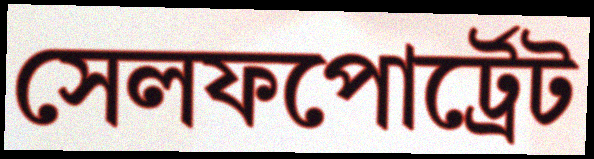
সেলফপোর্ট্রেট